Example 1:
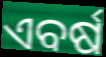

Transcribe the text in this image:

ଏବର୍ଷ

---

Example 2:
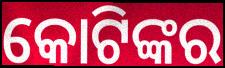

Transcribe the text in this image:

କୋଟିଙ୍କର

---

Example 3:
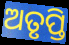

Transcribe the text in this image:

ଅତୃପ୍ତି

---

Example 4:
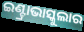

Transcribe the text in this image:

ଇଣ୍ଟ୍ରାଭାସ୍କୁଲାର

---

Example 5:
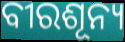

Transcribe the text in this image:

ବୀରଶୂନ୍ୟ